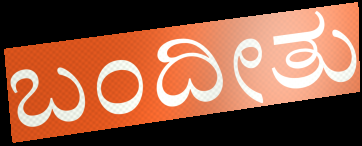
ಬಂದೀತು